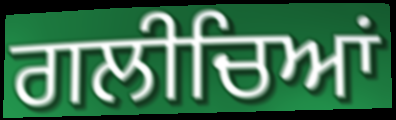
ਗਲੀਚਿਆਂ